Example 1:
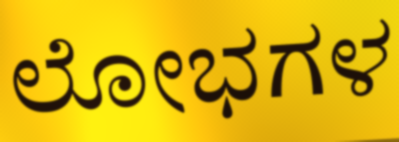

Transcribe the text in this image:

ಲೋಭಗಳ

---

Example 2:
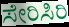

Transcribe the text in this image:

ಸೇರಿಸಿರಿ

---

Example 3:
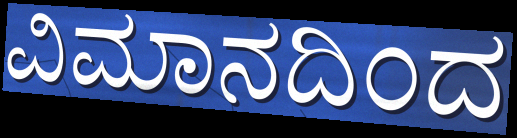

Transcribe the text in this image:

ವಿಮಾನದಿಂದ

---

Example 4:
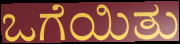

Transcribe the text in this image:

ಒಗೆಯಿತು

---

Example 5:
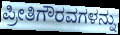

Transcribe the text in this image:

ಪ್ರೀತಿಗೌರವಗಳನ್ನು